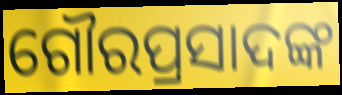
ଗୌରପ୍ରସାଦଙ୍କ